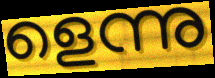
ളെന്നു